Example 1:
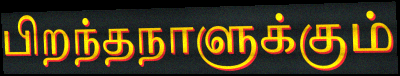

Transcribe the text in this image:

பிறந்தநாளுக்கும்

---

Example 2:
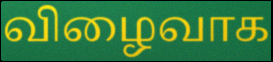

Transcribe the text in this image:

விழைவாக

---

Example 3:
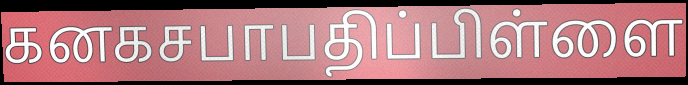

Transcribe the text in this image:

கனகசபாபதிப்பிள்ளை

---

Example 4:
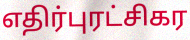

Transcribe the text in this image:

எதிர்புரட்சிகர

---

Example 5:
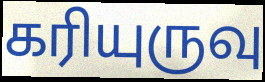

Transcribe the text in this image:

கரியுருவு